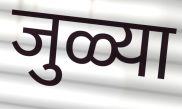
जुळ्या